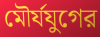
মৌর্যযুগের